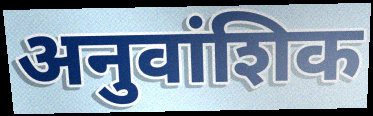
अनुवांशिक